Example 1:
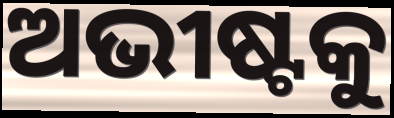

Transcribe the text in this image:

ଅଭୀଷ୍ଟକୁ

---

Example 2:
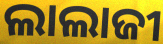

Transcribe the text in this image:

ଲାଲାଜୀ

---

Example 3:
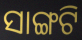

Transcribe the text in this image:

ସାଙ୍ଗଟି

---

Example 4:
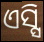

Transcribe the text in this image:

ଏସ୍ସି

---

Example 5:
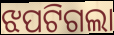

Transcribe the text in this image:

ଝପଟିଗଲା